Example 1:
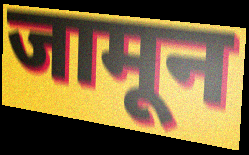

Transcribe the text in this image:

जामून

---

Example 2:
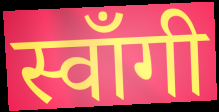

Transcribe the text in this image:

स्वाँगी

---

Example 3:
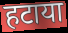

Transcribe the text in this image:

हटाया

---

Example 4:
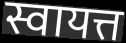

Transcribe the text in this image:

स्वायत्त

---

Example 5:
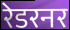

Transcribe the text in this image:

रेडरनर